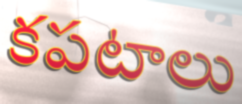
కపటాలు